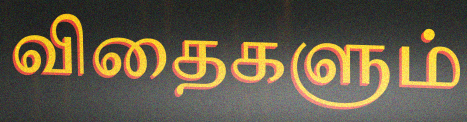
விதைகளும்